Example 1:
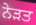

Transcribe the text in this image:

ਨੇੜਤ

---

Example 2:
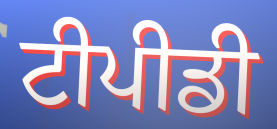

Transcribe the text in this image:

ਟੀਪੀਡੀ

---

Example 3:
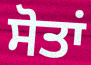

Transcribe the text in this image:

ਸੋਤਾਂ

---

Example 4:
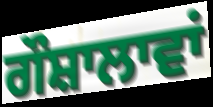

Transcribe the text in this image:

ਗੌਸ਼ਾਲਾਵਾਂ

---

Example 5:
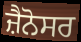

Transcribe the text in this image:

ਜ਼ੈਨੋਸਰ